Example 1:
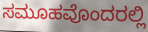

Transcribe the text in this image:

ಸಮೂಹವೊಂದರಲ್ಲಿ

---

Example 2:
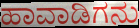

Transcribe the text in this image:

ಹಾವಾಡಿಗನು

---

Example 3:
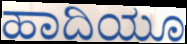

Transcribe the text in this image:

ಹಾದಿಯೂ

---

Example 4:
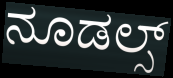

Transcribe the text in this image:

ನೂಡಲ್ಸ್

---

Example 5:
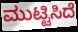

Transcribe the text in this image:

ಮುಟ್ಟಿಸಿದೆ